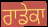
ਰਾਡੇਕਾ